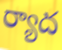
ర్యాద